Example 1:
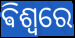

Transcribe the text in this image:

ଵିଶ୍ଵରେ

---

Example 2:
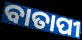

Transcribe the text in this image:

ବାତାପୀ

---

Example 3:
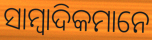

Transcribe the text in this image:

ସାମ୍ବାଦିକମାନେ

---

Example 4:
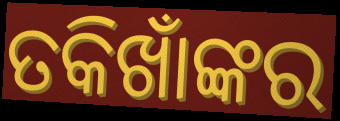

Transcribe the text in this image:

ତକିଖାଁଙ୍କର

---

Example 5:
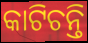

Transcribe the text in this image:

କାଟିଚନ୍ତି